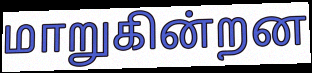
மாறுகின்றன